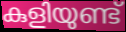
കുളിയുണ്ട്